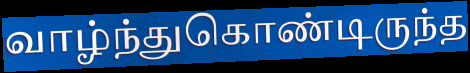
வாழ்ந்துகொண்டிருந்த